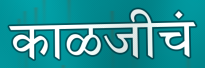
काळजीचं